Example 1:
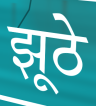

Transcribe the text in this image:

झूठे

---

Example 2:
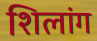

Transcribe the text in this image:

शिलांग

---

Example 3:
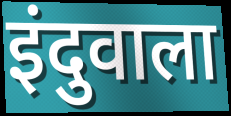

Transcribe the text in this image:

इंदुवाला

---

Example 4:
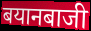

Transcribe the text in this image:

बयानबाजी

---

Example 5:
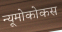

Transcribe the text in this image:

न्यूमोकोकस